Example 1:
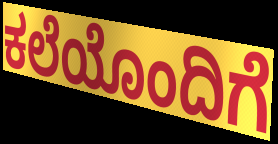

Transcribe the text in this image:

ಕಲೆಯೊಂದಿಗೆ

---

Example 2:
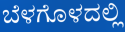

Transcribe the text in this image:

ಬೆಳಗೊಳದಲ್ಲಿ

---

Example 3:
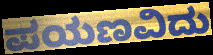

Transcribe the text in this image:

ಪಯಣವಿದು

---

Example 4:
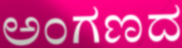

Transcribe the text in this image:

ಅಂಗಣದ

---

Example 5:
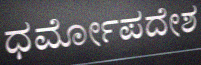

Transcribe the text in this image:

ಧರ್ಮೋಪದೇಶ